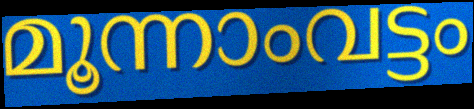
മൂന്നാംവട്ടം